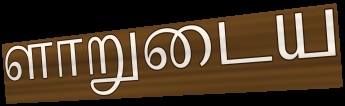
ளாறுடைய